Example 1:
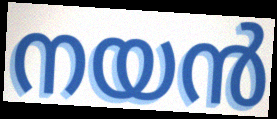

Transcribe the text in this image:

നയൻ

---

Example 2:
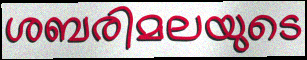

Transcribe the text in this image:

ശബരിമലയുടെ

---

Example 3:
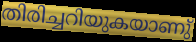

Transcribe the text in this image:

തിരിച്ചറിയുകയാണു്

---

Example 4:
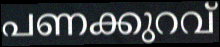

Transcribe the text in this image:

പണക്കുറവ്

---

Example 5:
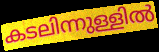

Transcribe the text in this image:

കടലിന്നുള്ളിൽ